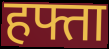
हफ्ता